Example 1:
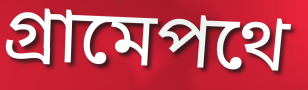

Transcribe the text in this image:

গ্রামেপথে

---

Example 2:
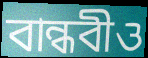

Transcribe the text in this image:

বান্ধবীও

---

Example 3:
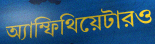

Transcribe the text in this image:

অ্যাম্ফিথিয়েটারও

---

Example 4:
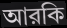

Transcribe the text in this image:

আরকি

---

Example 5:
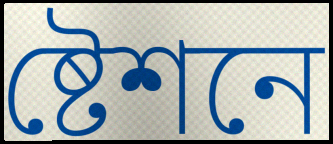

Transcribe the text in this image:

ষ্টেশনে